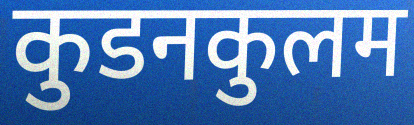
कुडनकुलम